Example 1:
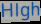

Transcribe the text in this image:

HIgh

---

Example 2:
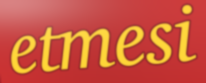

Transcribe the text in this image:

etmesi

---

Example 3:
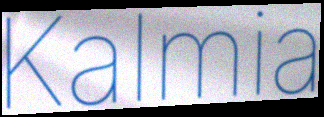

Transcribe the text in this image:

Kalmia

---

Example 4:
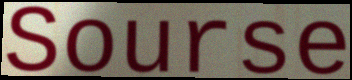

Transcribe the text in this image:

Sourse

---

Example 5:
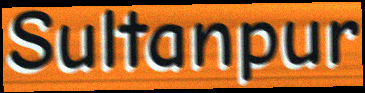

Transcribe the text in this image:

Sultanpur